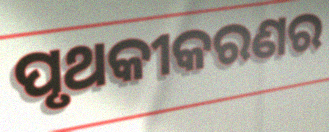
ପୃଥକୀକରଣର